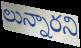
లున్నారని